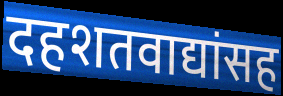
दहशतवाद्यांसह